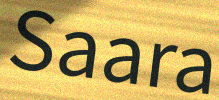
Saara